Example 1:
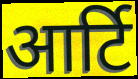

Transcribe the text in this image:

आर्टि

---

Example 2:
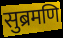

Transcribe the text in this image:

सुब्रमणि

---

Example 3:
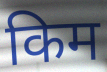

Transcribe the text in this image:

किम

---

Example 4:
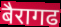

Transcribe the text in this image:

बैरागढ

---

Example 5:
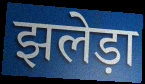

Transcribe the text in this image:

झलेड़ा